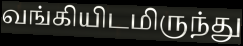
வங்கியிடமிருந்து